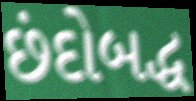
છંદોબદ્ધ